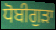
ਧੋਬੀਗੁੜਾ